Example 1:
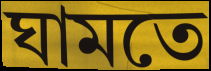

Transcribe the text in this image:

ঘামতে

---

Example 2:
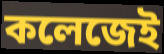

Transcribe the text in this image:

কলেজেই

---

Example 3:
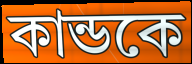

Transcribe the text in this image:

কান্ডকে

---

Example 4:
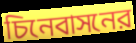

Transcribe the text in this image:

চিনেবাসনের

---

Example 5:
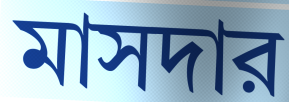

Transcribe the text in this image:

মাসদার